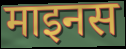
माइनस